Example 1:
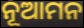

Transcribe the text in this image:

ନୂଆମନ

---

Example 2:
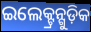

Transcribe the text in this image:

ଇଲେକ୍ଟ୍ରନ୍ଗୁଡ଼ିକ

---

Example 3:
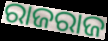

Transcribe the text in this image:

ରାଜରାଜ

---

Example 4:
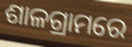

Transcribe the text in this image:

ଶାଳଗ୍ରାମରେ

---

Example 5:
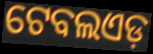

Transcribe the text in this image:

ଟେବଲଏଡ଼